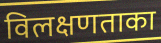
विलक्षणताका